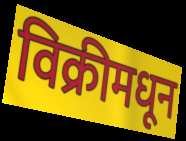
विक्रीमधून